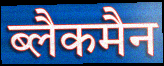
ब्लैकमैन